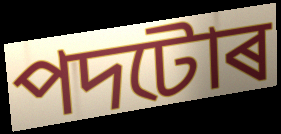
পদটোৰ